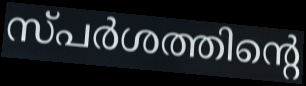
സ്പർശത്തിന്റെ